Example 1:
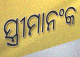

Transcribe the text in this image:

ସ୍ତ୍ରୀମାନଂକ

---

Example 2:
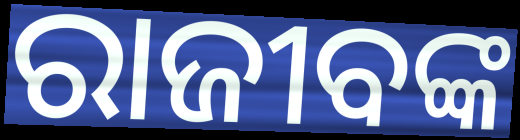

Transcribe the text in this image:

ରାଜୀବଙ୍କ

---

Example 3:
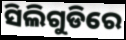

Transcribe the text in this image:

ସିଲିଗୁଡିରେ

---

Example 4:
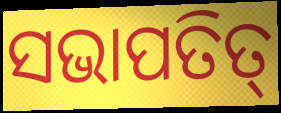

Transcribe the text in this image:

ସଭାପତିତ୍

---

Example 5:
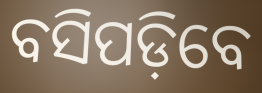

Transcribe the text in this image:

ବସିପଡ଼ିବେ